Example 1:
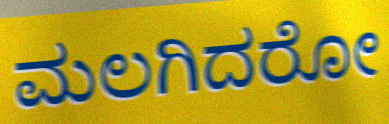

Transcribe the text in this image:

ಮಲಗಿದರೋ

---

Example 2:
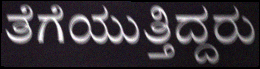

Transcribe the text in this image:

ತೆಗೆಯುತ್ತಿದ್ದರು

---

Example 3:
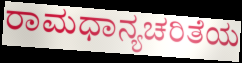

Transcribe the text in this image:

ರಾಮಧಾನ್ಯಚರಿತೆಯ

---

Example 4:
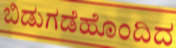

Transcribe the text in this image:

ಬಿಡುಗಡೆಹೊಂದಿದ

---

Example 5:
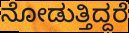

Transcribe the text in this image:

ನೋಡುತ್ತಿದ್ದರೆ